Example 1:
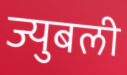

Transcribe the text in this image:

ज्युबली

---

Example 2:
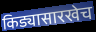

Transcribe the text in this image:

किड्यासारखेच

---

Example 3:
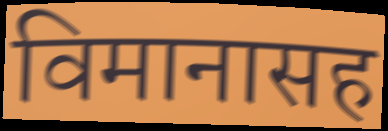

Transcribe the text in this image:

विमानासह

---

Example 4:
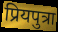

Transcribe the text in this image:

प्रियपुत्रा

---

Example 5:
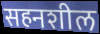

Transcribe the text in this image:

सहनशील